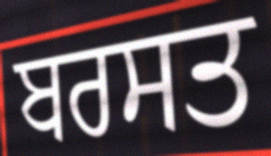
ਬਰਸਤ